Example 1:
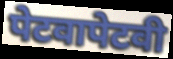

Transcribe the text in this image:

पेटवापेटवी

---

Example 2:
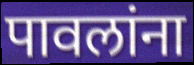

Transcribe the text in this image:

पावलांना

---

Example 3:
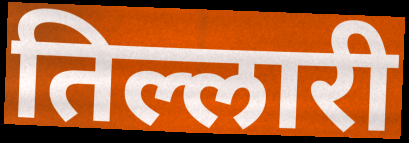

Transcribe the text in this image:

तिल्लारी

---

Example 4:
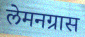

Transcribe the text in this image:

लेमनग्रास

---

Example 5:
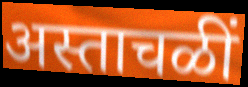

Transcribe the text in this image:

अस्ताचळीं